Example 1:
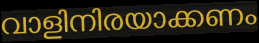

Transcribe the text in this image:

വാളിനിരയാക്കണം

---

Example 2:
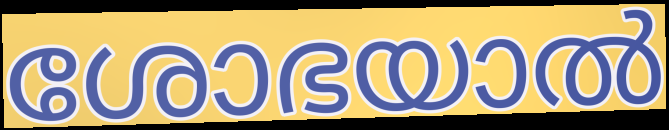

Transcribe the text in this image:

ശോഭയാൽ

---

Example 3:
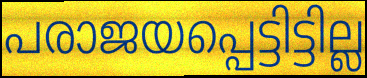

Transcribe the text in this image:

പരാജയപ്പെട്ടിട്ടില്ല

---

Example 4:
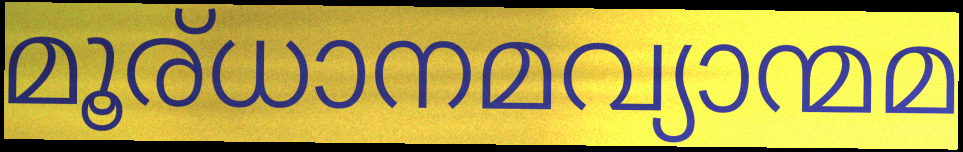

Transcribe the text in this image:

മൂര്ധാനമവ്യാന്മമ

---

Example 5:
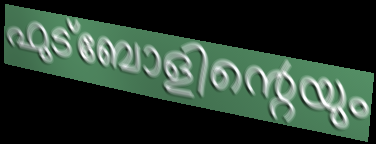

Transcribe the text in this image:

ഫുട്ബോളിന്റെയും